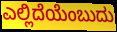
ಎಲ್ಲಿದೆಯೆಂಬುದು